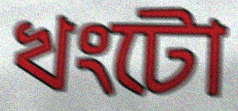
খংটো